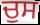
ਚੁਸ